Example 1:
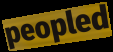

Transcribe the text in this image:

peopled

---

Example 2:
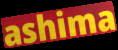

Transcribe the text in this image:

ashima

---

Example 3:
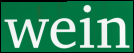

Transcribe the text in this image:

wein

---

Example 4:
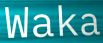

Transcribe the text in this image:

Waka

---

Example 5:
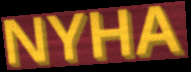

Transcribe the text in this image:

NYHA